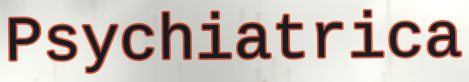
Psychiatrica